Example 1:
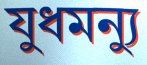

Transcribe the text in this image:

যুধমন্যু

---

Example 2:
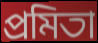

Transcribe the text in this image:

প্রমিতা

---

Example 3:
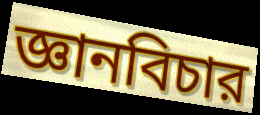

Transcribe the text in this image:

জ্ঞানবিচার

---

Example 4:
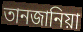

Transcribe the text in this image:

তানজানিয়া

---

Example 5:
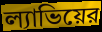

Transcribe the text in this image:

ল্যাভিয়ের